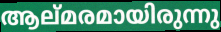
ആല്മരമായിരുന്നു